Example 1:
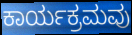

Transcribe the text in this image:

ಕಾರ್ಯಕ್ರಮವು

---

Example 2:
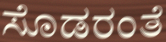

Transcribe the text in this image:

ಸೊಡರಂತೆ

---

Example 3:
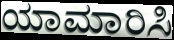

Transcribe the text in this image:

ಯಾಮಾರಿಸಿ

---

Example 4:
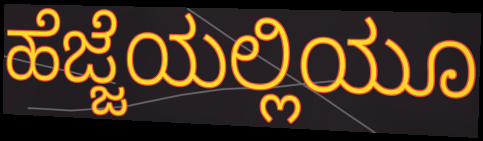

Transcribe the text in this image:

ಹೆಜ್ಜೆಯಲ್ಲಿಯೂ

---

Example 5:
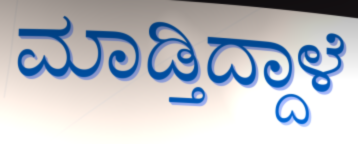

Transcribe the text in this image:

ಮಾಡ್ತಿದ್ದಾಳೆ